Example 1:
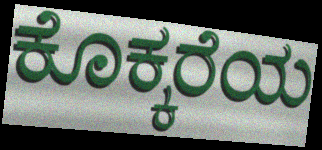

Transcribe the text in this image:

ಕೊಕ್ಕರೆಯ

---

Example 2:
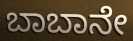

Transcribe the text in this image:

ಬಾಬಾನೇ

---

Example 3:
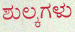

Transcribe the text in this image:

ಶುಲ್ಕಗಳು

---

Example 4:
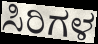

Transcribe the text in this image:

ಸಿರಿಗಳ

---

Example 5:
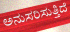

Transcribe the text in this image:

ಅನುಸರಿಸುತ್ತಿದೆ